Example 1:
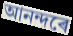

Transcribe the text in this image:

আনন্দৰে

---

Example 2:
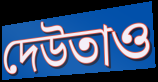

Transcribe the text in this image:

দেউতাও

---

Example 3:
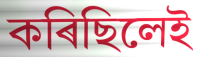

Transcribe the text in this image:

কৰিছিলেই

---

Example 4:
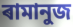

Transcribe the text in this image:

ৰামানুজ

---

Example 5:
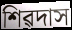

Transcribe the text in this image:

শিৱদাস